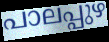
പാലപ്പുഴ